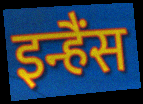
इन्हैंस